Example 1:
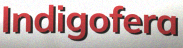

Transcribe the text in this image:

Indigofera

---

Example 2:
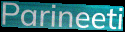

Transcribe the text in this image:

Parineeti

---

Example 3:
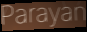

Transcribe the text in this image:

Parayan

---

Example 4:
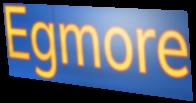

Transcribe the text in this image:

Egmore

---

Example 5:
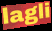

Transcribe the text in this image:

lagli